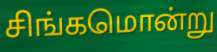
சிங்கமொன்று